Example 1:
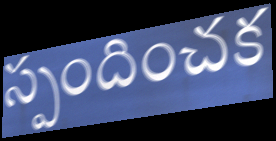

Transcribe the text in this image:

స్పందించక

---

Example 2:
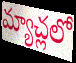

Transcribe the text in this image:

మ్యాచ్లలో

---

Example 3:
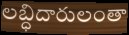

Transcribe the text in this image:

లబ్ధిదారులంతా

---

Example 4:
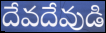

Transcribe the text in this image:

దేవదేవుడి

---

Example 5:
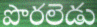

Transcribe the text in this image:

పొరలెడు